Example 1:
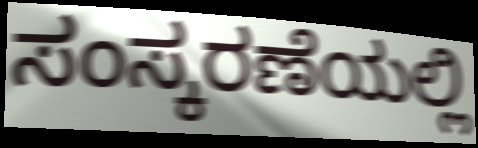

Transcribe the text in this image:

ಸಂಸ್ಕರಣೆಯಲ್ಲಿ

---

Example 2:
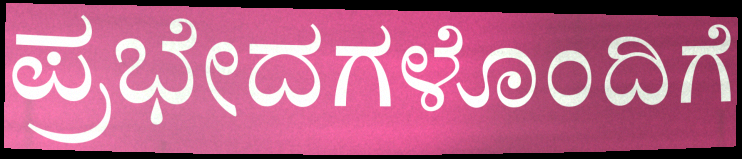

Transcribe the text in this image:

ಪ್ರಭೇದಗಳೊಂದಿಗೆ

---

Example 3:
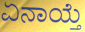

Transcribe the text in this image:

ಏನಾಯ್ತೆ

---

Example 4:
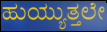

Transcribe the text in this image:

ಹುಯ್ಯುತ್ತಲೇ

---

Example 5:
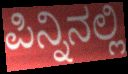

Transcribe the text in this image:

ಪಿನ್ನಿನಲ್ಲಿ